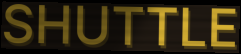
SHUTTLE